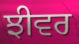
ਝੀਵਰ